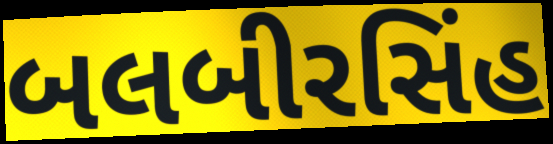
બલબીરસિંહ